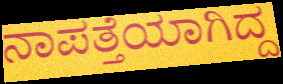
ನಾಪತ್ತೆಯಾಗಿದ್ದ